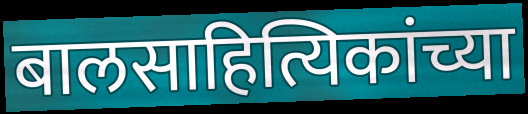
बालसाहित्यिकांच्या